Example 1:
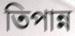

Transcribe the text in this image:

তিপান্ন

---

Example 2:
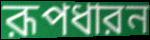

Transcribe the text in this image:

রূপধারন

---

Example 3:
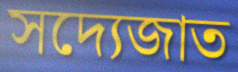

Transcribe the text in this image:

সদ্যেজাত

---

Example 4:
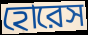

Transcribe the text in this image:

হোরেস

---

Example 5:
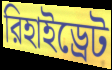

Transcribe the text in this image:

রিহাইড্রেট